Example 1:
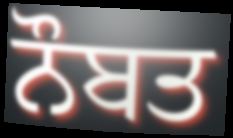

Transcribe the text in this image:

ਨੌਬਤ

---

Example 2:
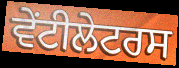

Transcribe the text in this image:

ਵੇਂਟੀਲੇਟਰਸ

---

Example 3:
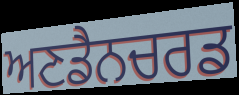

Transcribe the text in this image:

ਅਣਡੈਨਚਰਡ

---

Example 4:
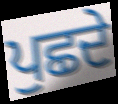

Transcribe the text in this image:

ਪੁਛਦੇ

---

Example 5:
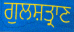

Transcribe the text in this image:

ਗੁਲਸ਼ਤ੍ਰਾਣ